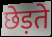
छेड़ते